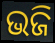
ଭଜି